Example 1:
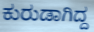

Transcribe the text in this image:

ಕುರುಡಾಗಿದ್ದ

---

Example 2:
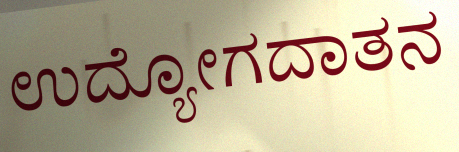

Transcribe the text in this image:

ಉದ್ಯೋಗದಾತನ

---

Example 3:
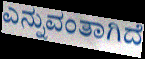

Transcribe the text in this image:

ಎನ್ನುವಂತಾಗಿದೆ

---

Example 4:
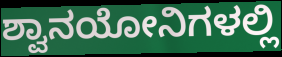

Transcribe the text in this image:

ಶ್ವಾನಯೋನಿಗಳಲ್ಲಿ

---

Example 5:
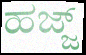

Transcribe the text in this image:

ಹಜ್ಜ್